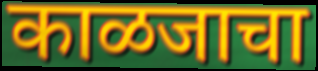
काळजाचा